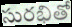
సురభితో